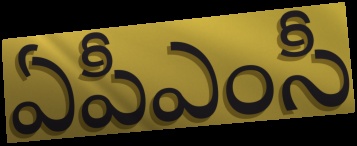
ఏపీఎంసీ